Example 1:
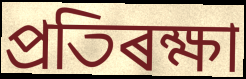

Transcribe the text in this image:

প্ৰতিৰক্ষা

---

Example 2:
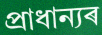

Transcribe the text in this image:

প্ৰাধান্যৰ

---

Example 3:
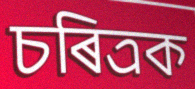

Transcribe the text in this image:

চৰিত্ৰক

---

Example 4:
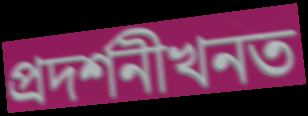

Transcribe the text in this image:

প্ৰদৰ্শনীখনত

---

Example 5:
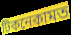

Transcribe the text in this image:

টিকনেকামত